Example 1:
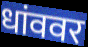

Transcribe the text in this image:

धांववर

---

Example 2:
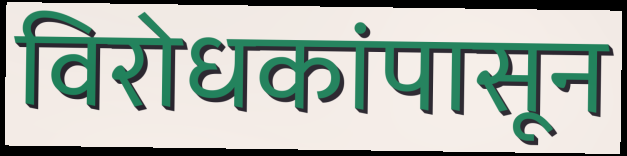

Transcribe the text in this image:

विरोधकांपासून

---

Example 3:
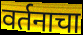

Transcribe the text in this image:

वर्तनाचा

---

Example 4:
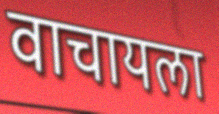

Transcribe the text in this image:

वाचायला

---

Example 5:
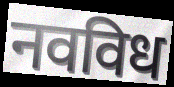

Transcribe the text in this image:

नवविध